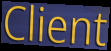
Client